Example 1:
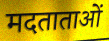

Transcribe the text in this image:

मदताताओं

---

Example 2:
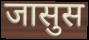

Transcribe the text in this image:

जासुस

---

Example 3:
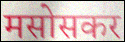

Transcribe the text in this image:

मसोसकर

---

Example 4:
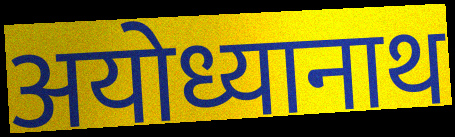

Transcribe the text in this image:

अयोध्यानाथ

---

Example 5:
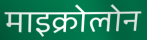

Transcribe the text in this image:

माइक्रोलोन